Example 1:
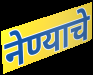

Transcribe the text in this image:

नेण्याचे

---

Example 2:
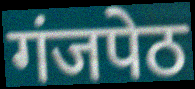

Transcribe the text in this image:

गंजपेठ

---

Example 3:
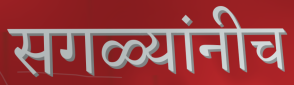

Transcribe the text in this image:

सगळ्यांनीच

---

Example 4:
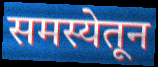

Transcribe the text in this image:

समस्येतून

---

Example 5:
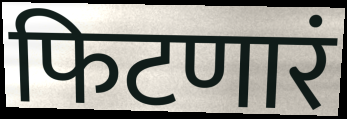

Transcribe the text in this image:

फिटणारं